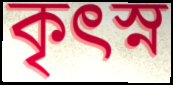
কৃৎস্ন